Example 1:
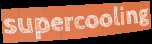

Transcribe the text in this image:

supercooling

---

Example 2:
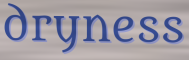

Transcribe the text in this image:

dryness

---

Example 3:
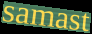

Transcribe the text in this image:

samast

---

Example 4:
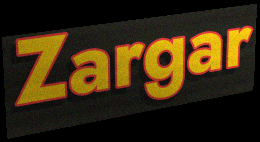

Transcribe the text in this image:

Zargar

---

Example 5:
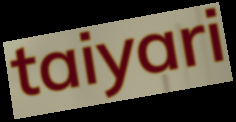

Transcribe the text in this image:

taiyari